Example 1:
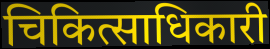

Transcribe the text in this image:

चिकित्साधिकारी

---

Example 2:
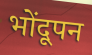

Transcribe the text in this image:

भोंदूपन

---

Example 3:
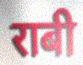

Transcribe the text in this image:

राबी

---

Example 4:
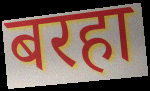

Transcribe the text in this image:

बरहा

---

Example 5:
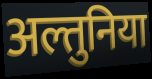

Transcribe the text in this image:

अल्तुनिया